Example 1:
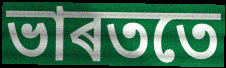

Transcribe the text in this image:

ভাৰততে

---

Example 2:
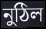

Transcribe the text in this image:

নুঠিল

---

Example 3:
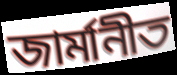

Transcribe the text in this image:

জাৰ্মানীত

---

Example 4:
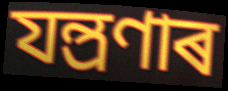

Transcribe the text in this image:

যন্ত্ৰণাৰ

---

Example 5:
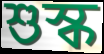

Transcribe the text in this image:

শুস্ক